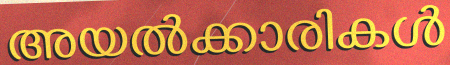
അയൽക്കാരികൾ